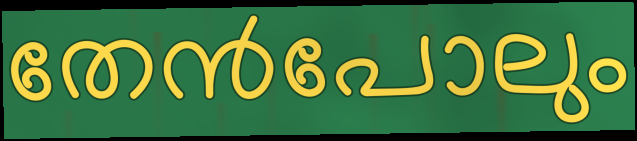
തേൻപോലും